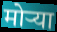
मोर्‍या